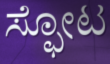
ಸ್ಫೋಟ